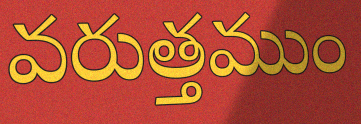
వరుత్తముం